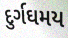
દુર્ગઘમય